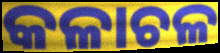
କଳାଚଳ